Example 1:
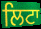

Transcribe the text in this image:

ਲਿਟਾ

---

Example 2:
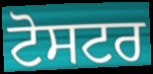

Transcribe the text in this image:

ਟੋਸਟਰ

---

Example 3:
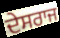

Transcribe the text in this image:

ਦੇਸਰਾਜ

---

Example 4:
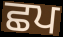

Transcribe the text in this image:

ਛਪ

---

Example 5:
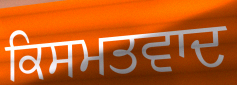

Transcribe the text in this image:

ਕਿਸਮਤਵਾਦ